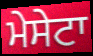
ਮੇਸੇਟਾ